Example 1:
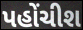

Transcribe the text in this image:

પહોંચીશ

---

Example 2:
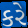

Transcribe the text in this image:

કરે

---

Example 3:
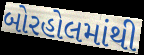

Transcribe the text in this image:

બોરહોલમાંથી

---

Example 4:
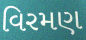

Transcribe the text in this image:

વિરમણ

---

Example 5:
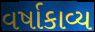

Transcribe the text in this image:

વર્ષાકાવ્ય